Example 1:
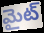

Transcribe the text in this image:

మైట్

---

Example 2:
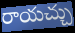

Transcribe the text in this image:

రాయచ్చు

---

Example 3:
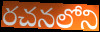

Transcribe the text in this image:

రచనలోని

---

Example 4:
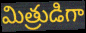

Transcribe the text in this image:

మిత్రుడిగా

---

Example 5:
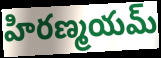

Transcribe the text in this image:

హిరణ్మయమ్